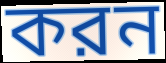
করন